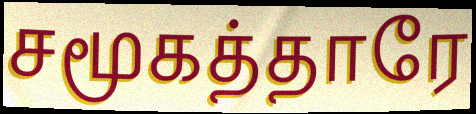
சமூகத்தாரே